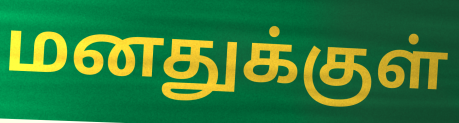
மனதுக்குள்